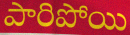
పారిపోయి